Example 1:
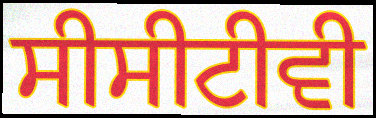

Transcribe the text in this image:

ਸੀਸੀਟੀਵੀ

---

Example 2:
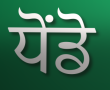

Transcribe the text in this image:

ਧੋਂਡੋ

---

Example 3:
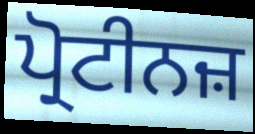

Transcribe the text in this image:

ਪ੍ਰੋਟੀਨਜ਼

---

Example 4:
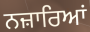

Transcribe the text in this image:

ਨਜ਼ਾਰਿਆਂ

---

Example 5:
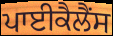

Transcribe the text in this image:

ਪਾਈਕੈਲੈਂਸ